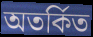
অতর্কিত